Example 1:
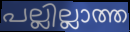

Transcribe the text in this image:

പല്ലില്ലാത്ത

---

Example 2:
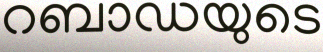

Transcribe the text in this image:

റബാഡയുടെ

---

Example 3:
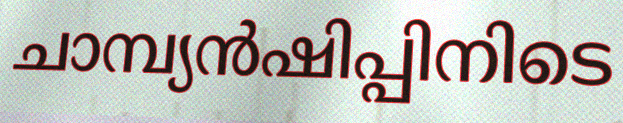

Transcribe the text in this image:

ചാമ്പ്യൻഷിപ്പിനിടെ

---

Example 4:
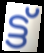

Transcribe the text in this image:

ട്ട്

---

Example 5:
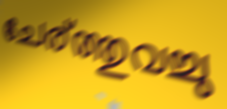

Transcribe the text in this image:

ചേര്ത്തുവച്ചു